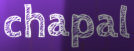
chapal